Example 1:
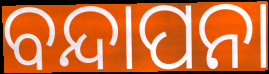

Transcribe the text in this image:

ବନ୍ଦାପନା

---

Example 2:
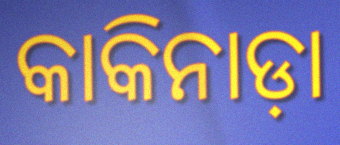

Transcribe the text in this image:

କାକିନାଡ଼ା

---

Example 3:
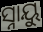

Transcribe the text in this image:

ସ୍ନାୟୁ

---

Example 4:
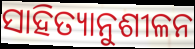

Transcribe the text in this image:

ସାହିତ୍ୟାନୁଶୀଳନ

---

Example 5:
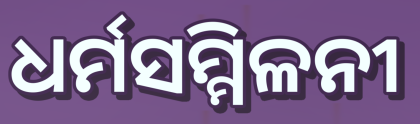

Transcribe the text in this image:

ଧର୍ମସମ୍ମିଳନୀ